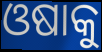
ଓଷାକୁ